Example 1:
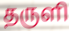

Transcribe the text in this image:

தருளி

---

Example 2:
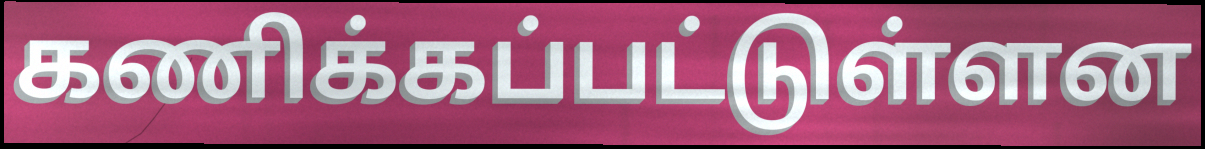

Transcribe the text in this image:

கணிக்கப்பட்டுள்ளன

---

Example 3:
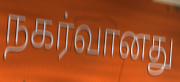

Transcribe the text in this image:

நகர்வானது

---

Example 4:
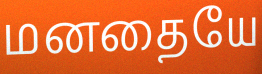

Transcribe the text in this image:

மனதையே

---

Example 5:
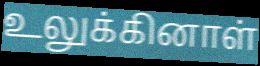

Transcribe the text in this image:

உலுக்கினாள்